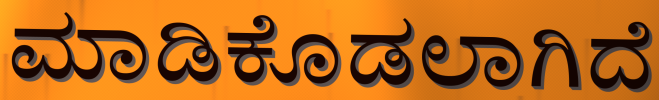
ಮಾಡಿಕೊಡಲಾಗಿದೆ